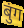
बुंग